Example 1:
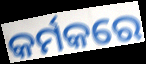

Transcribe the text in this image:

କର୍ମକରେ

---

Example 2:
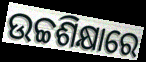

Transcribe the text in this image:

ଉଚ୍ଚଶିକ୍ଷାରେ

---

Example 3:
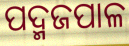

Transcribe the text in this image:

ପଦ୍ମଜପାଳ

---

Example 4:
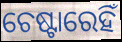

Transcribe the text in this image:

ଚେଷ୍ଟାରେହିଁ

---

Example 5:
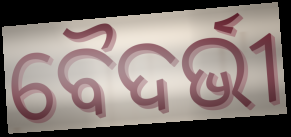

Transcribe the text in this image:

ବୈଦର୍ଭୀ